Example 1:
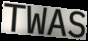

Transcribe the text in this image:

TWAS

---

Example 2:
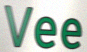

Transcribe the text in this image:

Vee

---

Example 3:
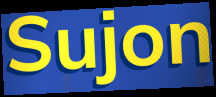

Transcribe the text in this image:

Sujon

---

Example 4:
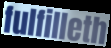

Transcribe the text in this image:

fulfilleth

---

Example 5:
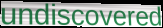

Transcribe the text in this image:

undiscovered